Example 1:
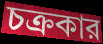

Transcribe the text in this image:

চক্রকার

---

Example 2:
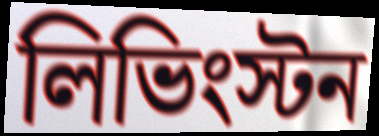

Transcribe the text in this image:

লিভিংস্টন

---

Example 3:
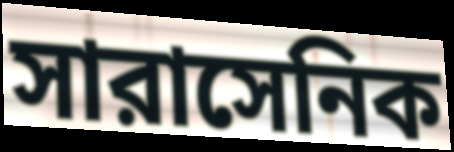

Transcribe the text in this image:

সারাসেনিক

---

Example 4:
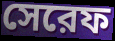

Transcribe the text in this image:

সেরেফ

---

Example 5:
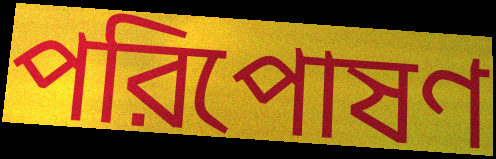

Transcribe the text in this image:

পরিপোষণ